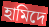
হামিদে